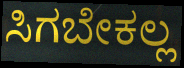
ಸಿಗಬೇಕಲ್ಲ